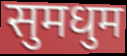
सुमधुम